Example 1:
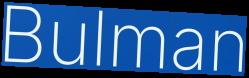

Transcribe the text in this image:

Bulman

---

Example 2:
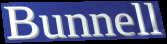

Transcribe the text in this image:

Bunnell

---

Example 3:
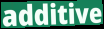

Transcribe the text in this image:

additive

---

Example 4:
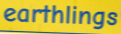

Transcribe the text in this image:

earthlings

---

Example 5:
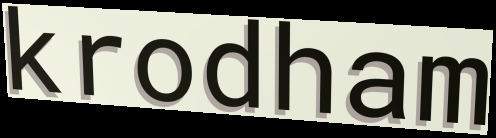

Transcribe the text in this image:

krodham